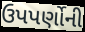
ઉપપર્ણોની